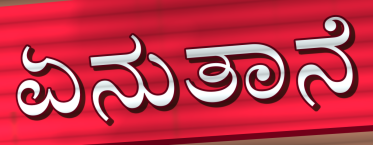
ಏನುತಾನೆ